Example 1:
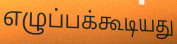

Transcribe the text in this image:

எழுப்பக்கூடியது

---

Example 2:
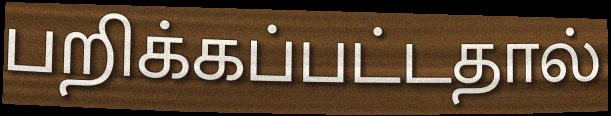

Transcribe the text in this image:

பறிக்கப்பட்டதால்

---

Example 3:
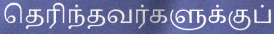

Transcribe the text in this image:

தெரிந்தவர்களுக்குப்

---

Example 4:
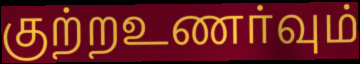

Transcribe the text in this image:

குற்றஉணர்வும்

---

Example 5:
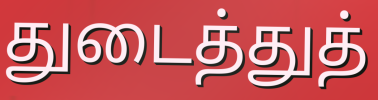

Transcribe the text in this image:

துடைத்துத்